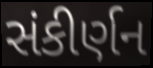
સંકીર્ણન